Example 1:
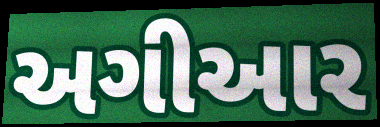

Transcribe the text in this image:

અગીઆર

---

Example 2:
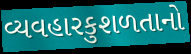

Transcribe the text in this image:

વ્યવહારકુશળતાનો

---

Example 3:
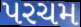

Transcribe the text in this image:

પરચમ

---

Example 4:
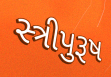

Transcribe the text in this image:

સ્ત્રીપુરૂષ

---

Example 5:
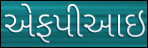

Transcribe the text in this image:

એફપીઆઇ